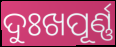
ଦୁଃଖପୂର୍ଣ୍ଣ